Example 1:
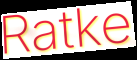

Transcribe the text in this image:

Ratke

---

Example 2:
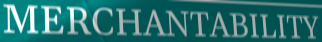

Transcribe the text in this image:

MERCHANTABILITY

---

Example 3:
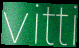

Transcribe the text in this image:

vitti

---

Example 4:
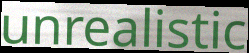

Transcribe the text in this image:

unrealistic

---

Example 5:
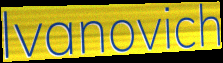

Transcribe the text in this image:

Ivanovich